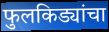
फुलकिड्यांचा